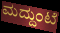
ಮದ್ದುಂಟೆ